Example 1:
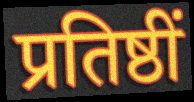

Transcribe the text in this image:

प्रतिष्ठीं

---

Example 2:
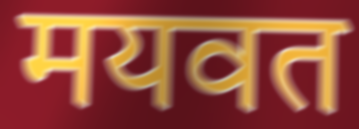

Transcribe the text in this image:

मयवत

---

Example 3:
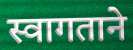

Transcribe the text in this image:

स्वागताने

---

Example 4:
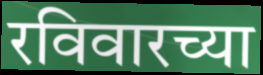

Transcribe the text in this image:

रविवारच्या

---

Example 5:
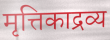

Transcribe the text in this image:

मृत्तिकाद्रव्य